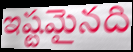
ఇష్టమైనది